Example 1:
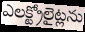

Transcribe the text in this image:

ఎలక్ట్రోలైట్లను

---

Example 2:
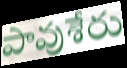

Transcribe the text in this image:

పావుశేరు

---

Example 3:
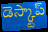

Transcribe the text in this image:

డెస్క్టాప్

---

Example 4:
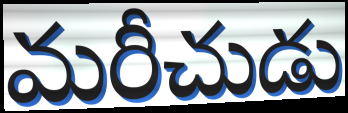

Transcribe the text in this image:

మరీచుడు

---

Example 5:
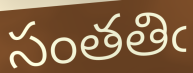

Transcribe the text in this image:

సంతతిఁ